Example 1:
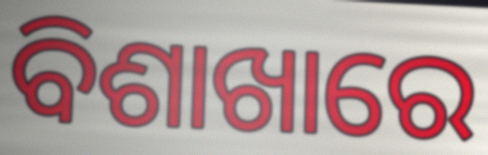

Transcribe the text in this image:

ବିଶାଖାରେ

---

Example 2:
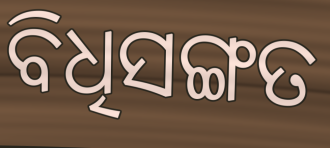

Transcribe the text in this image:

ବିଧିସଙ୍ଗତ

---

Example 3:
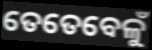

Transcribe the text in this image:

ତେତେବେଳୁଁ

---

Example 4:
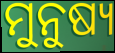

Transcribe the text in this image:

ମୁନୁଷ୍ୟ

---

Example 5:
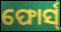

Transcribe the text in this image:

ଫୋର୍ସ୍